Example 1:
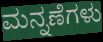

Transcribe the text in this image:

ಮನ್ನಣೆಗಳು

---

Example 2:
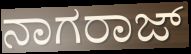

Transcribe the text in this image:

ನಾಗರಾಜ್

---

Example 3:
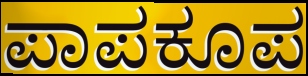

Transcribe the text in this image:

ಪಾಪಕೂಪ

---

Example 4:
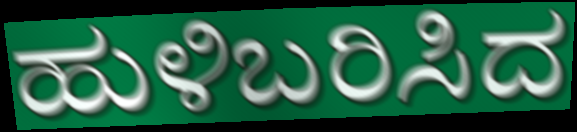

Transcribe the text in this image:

ಹುಳಿಬರಿಸಿದ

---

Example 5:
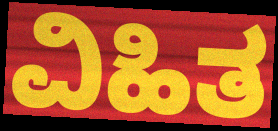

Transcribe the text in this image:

ವಿಹಿತ